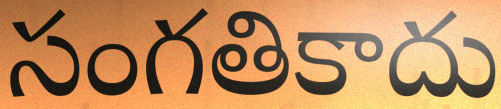
సంగతికాదు